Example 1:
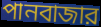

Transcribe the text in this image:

পানবাজার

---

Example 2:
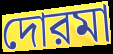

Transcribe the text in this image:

দোরমা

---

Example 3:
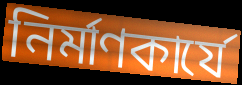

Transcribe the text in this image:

নির্মাণকার্যে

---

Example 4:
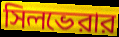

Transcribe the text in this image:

সিলভেরার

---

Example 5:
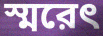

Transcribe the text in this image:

স্মরেৎ